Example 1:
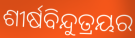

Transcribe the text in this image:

ଶୀର୍ଷବିନ୍ଦୁତ୍ରୟର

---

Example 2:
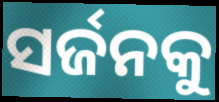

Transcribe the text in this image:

ସର୍ଜନକୁ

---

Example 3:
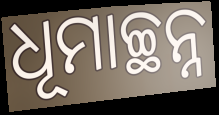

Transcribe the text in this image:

ଧୂମାଚ୍ଛନ୍ନ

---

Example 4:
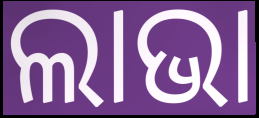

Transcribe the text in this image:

ଲାଭା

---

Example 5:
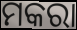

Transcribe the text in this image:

ମକରା